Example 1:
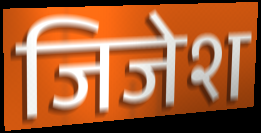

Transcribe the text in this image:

जिजेश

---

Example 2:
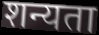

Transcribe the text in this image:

शन्यता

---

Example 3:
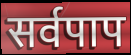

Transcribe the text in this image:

सर्वपाप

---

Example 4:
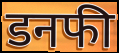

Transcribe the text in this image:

डनफी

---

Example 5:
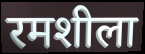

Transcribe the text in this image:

रमशीला